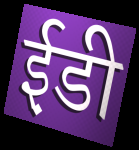
ई़डी